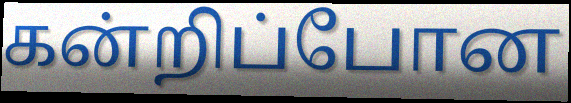
கன்றிப்போன